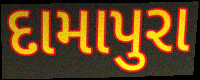
દામાપુરા